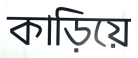
কাড়িয়ে